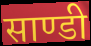
साण्डी